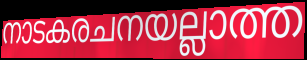
നാടകരചനയല്ലാത്ത